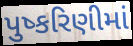
પુષ્કરિણીમાં